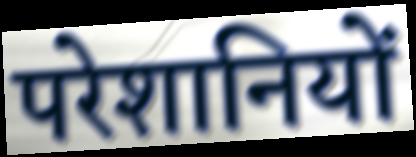
परेशानियों